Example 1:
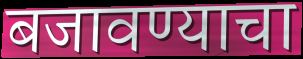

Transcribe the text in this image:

बजावण्याचा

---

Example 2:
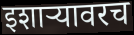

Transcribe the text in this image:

इशाऱ्यावरच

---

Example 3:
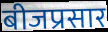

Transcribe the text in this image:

बीजप्रसार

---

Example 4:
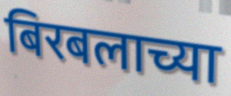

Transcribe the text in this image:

बिरबलाच्या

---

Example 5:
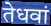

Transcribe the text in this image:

तेधवां